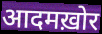
आदमख़ोर